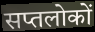
सप्तलोकों